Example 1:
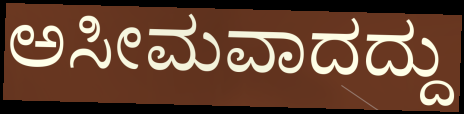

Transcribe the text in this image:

ಅಸೀಮವಾದದ್ದು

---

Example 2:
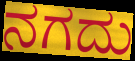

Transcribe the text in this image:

ನಗದು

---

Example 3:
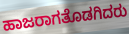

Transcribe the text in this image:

ಹಾಜರಾಗತೊಡಗಿದರು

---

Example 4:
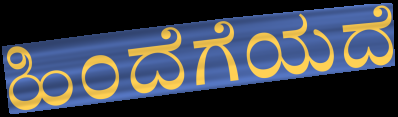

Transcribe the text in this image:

ಹಿಂದೆಗೆಯದೆ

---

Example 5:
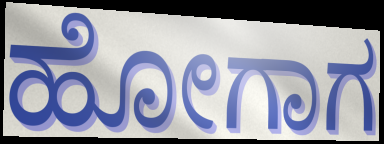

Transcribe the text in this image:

ಹೋಗಾಗ